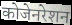
कोजेनरेशन